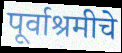
पूर्वाश्रमीचे